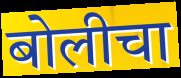
बोलीचा